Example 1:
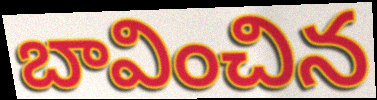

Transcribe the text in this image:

బావించిన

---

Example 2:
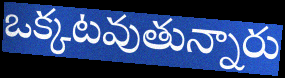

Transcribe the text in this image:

ఒక్కటవుతున్నారు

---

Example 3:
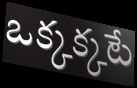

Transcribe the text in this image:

ఒక్కక్కటే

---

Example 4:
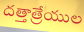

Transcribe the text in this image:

దత్తాత్రేయుల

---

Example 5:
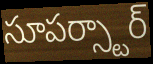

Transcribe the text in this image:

సూపర్స్టార్